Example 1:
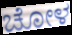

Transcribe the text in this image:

ಚೋಳ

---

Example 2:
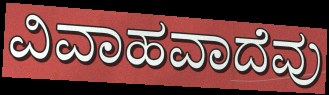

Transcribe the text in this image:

ವಿವಾಹವಾದೆವು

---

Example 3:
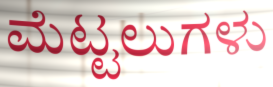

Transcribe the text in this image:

ಮೆಟ್ಟಲುಗಳು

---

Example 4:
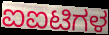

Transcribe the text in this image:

ಐಐಟಿಗಳ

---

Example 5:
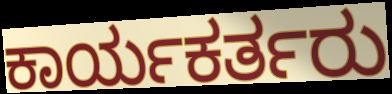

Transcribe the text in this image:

ಕಾರ್ಯಕರ್ತರು